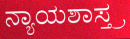
ನ್ಯಾಯಶಾಸ್ತ್ರ